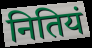
नितियं